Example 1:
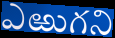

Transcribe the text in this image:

ఎఱుగని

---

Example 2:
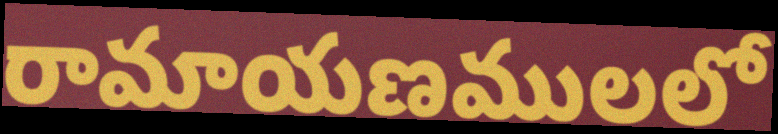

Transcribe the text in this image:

రామాయణములలో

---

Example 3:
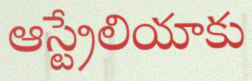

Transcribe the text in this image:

ఆస్ట్రేలియాకు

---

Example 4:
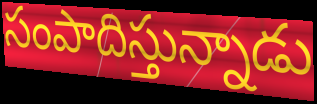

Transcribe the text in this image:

సంపాదిస్తున్నాడు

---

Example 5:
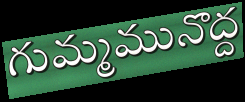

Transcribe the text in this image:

గుమ్మమునొద్ద